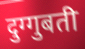
दुग्गुबती